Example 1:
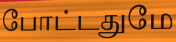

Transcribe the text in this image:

போட்டதுமே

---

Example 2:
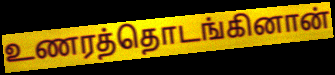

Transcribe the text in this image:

உணரத்தொடங்கினான்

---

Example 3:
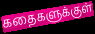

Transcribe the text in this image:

கதைகளுக்குள்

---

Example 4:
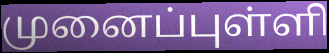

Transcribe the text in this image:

முனைப்புள்ளி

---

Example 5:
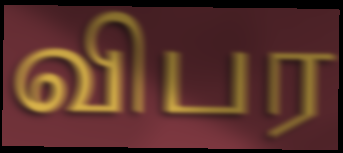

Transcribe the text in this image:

விபர